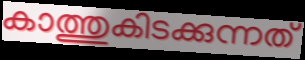
കാത്തുകിടക്കുന്നത്